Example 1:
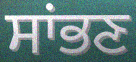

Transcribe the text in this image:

ਸਾਂਭਣ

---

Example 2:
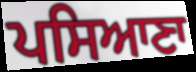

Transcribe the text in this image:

ਪਸਿਆਣਾ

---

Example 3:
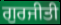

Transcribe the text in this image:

ਗੁਰਜੀਤੀ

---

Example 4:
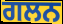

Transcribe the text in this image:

ਗਲਨ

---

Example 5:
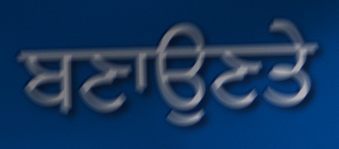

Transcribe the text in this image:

ਬਣਾਉਣਤੇ